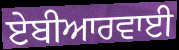
ਏਬੀਆਰਵਾਈ